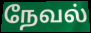
நேவல்